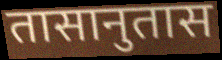
तासानुतास